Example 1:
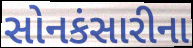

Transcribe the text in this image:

સોનકંસારીના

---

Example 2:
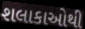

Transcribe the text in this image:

શલાકાઓથી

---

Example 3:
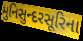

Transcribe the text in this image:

મુનિસુન્દરસૂરિના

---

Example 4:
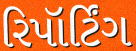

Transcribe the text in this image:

રિપૉર્ટિંગ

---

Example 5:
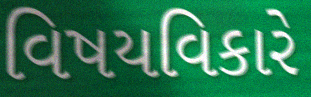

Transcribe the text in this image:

વિષયવિકારે